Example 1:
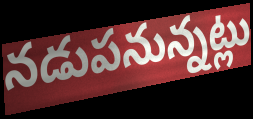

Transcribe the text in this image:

నడుపనున్నట్లు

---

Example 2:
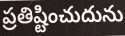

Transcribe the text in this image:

ప్రతిష్టించుదును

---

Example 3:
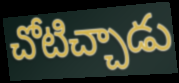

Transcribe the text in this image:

చోటిచ్చాడు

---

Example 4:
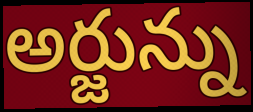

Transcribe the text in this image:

అర్జున్ను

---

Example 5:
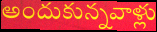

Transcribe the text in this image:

అందుకున్నవాళ్లు